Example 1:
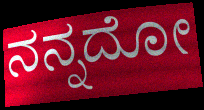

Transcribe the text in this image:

ನನ್ನದೋ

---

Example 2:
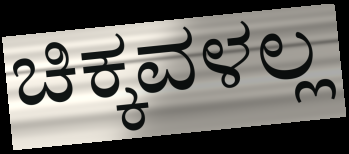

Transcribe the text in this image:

ಚಿಕ್ಕವಳಲ್ಲ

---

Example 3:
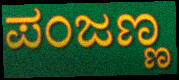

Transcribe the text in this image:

ಪಂಜಣ್ಣ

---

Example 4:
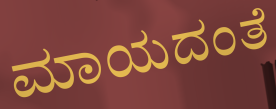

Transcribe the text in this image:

ಮಾಯದಂತೆ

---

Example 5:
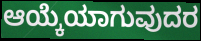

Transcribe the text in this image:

ಆಯ್ಕೆಯಾಗುವುದರ